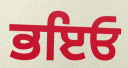
ਭਇਓ